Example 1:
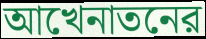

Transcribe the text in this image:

আখেনাতনের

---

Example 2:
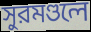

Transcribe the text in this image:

সুরমণ্ডলে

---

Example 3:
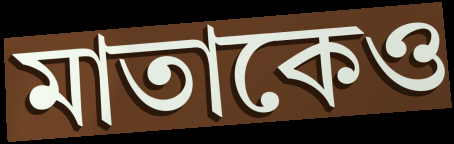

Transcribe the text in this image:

মাতাকেও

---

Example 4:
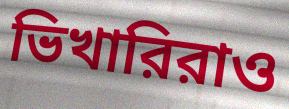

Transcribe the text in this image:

ভিখারিরাও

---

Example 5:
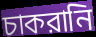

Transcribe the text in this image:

চাকরানি